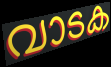
വാടക